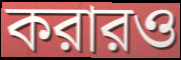
করারও